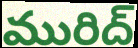
మురిద్